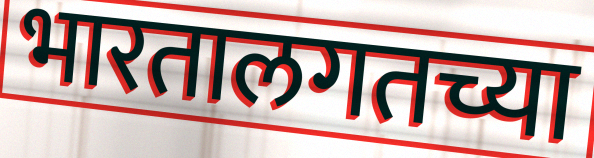
भारतालगतच्या